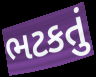
ભટકતું